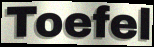
Toefel